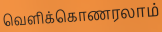
வெளிக்கொணரலாம்